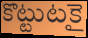
కొట్టుటకై